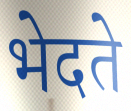
भेदते